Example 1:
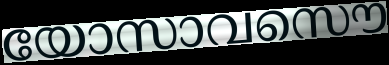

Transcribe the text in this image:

യോസാവസൌ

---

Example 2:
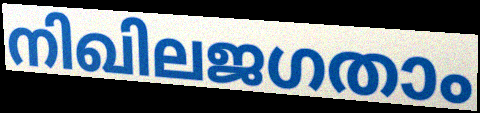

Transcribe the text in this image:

നിഖിലജഗതാം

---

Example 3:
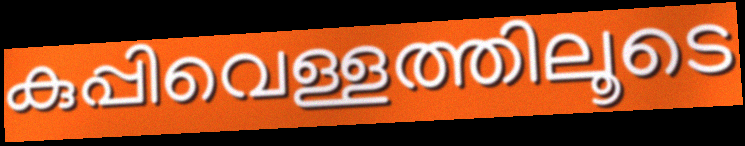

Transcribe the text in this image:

കുപ്പിവെള്ളത്തിലൂടെ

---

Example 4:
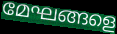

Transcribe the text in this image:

മേഘങ്ങളെ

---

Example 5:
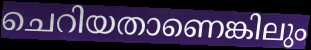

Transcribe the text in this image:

ചെറിയതാണെങ്കിലും